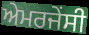
ਅੇਮਰਜੇਂਸੀ